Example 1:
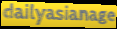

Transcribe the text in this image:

dailyasianage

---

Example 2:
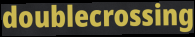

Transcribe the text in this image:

doublecrossing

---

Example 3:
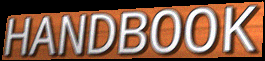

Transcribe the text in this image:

HANDBOOK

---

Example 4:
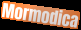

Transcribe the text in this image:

Mormodica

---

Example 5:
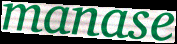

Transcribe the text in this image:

manase